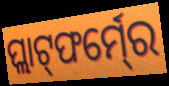
ପ୍ଲାଟ୍‍ଫର୍ମ୍‍ରେ